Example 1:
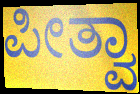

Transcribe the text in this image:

ಪೀತ್ವಾ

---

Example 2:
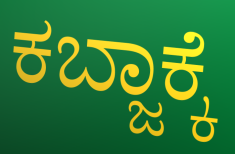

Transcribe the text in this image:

ಕಬ್ಜಾಕ್ಕೆ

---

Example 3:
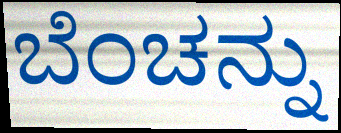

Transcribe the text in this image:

ಬೆಂಚನ್ನು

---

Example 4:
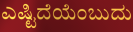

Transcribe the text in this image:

ಎಷ್ಟಿದೆಯೆಂಬುದು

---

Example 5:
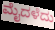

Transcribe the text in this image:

ಮೈದಳೆದು